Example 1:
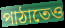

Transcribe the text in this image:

পাঠাতেও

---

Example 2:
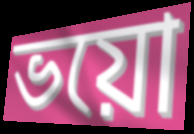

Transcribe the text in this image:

ভয়ো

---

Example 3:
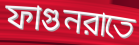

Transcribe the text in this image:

ফাগুনরাতে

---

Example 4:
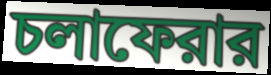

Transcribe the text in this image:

চলাফেরার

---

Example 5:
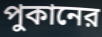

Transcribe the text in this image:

পুকানের